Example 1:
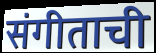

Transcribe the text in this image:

संगीताची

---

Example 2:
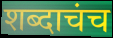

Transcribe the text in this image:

शब्दाचंच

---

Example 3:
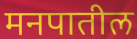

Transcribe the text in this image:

मनपातील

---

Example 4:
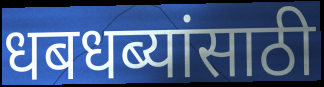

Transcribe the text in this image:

धबधब्यांसाठी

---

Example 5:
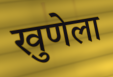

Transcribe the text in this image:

खुणेला